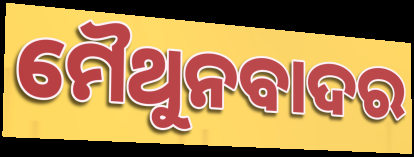
ମୈଥୁନବାଦର